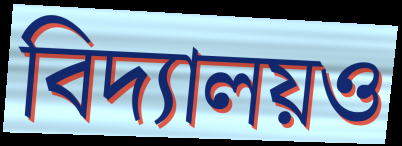
বিদ্যালয়ও